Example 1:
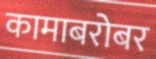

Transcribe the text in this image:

कामाबरोबर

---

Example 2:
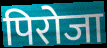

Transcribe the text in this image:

पिरोजा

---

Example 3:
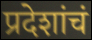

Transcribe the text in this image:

प्रदेशांचं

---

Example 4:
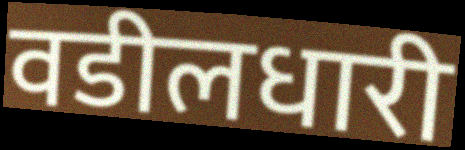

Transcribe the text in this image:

वडीलधारी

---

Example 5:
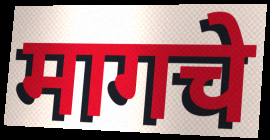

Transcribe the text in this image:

मागचे